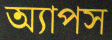
অ্যাপস